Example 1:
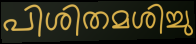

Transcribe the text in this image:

പിശിതമശിച്ചു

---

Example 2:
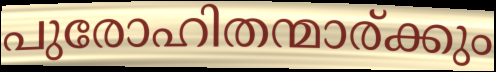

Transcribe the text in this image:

പുരോഹിതന്മാര്ക്കും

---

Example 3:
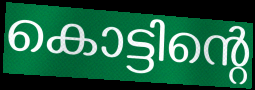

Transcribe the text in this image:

കൊട്ടിന്റെ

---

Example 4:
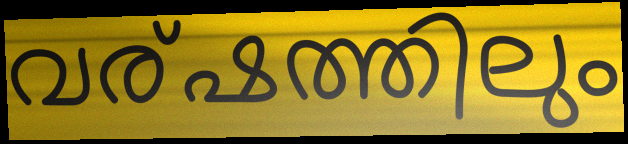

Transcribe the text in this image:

വര്ഷത്തിലും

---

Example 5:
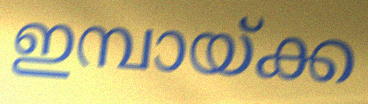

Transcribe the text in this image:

ഇമ്പായ്ക്ക